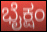
ಭೈಕ್ಷಂ